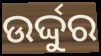
ଉର୍ଦ୍ଦୁର